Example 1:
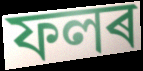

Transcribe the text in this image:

ফলৰ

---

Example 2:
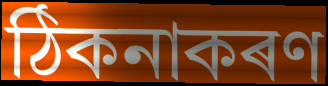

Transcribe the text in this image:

ঠিকনাকৰণ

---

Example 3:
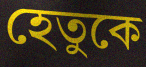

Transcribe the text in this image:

হেতুকে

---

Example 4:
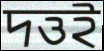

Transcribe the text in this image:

দত্তই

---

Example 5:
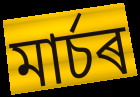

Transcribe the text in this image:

মাৰ্চৰ